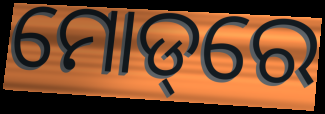
ମୋଡ୍‌ରେ